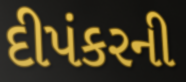
દીપંકરની